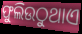
ଫୁଲିଉଠୁଥାଏ